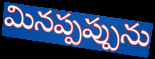
మినప్పప్పును